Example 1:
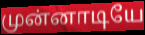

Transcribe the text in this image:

முன்னாடியே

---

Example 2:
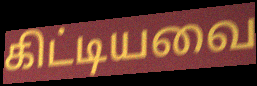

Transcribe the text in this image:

கிட்டியவை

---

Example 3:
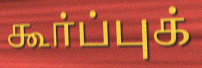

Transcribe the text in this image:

கூர்ப்புக்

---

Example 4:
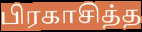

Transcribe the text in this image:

பிரகாசித்த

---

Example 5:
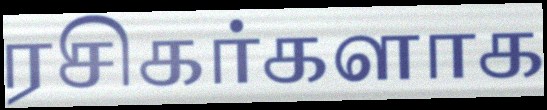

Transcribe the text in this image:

ரசிகர்களாக